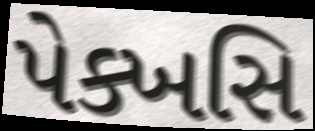
પેક્ખસિ